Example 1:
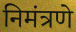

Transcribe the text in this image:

निमंत्रणे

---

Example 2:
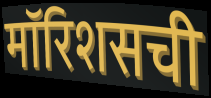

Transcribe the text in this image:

मॉरिशसची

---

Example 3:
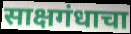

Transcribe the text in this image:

साक्षगंधाचा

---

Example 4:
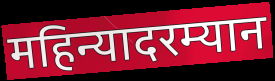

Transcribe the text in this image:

महिन्यादरम्यान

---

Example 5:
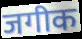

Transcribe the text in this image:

जगीक